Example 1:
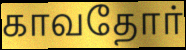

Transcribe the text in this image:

காவதோர்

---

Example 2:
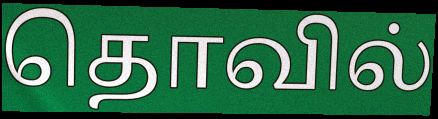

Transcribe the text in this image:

தொவில்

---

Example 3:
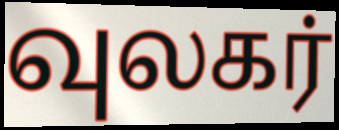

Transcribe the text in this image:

வுலகர்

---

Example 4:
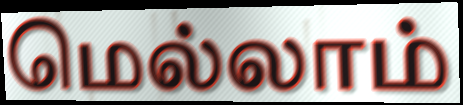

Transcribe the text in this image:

மெல்லாம்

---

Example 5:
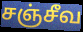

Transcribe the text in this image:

சஞ்சீவ